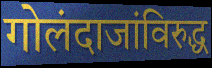
गोलंदाजांविरुद्ध